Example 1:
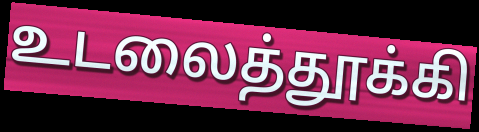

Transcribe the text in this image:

உடலைத்தூக்கி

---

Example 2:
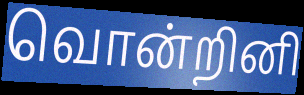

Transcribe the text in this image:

வொன்றினி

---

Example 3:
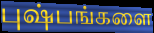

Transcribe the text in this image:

புஷ்பங்களை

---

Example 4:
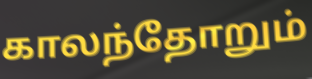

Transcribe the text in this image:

காலந்தோறும்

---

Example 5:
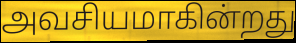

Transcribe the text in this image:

அவசியமாகின்றது